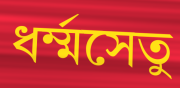
ধর্ম্মসেতু